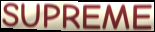
SUPREME